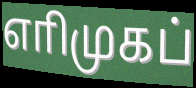
எரிமுகப்